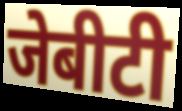
जेबीटी